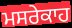
ਮਸਰੇਕਾਹ